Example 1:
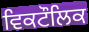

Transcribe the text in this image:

ਵਿਕਟੌਲਿਕ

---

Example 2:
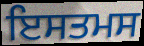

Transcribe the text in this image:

ਇਸਤਮਸ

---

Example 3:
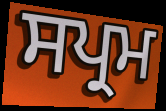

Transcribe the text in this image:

ਸਪ੍ਰਮ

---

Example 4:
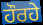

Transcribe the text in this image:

ਹੌਰਹੇ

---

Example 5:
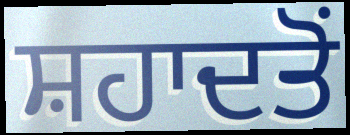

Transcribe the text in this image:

ਸ਼ਹਾਦਤੋਂ